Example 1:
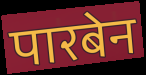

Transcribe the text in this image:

पारबेन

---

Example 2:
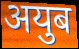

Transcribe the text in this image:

अयुब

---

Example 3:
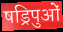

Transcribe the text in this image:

षड्रिपुओं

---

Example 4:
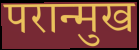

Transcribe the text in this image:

परान्मुख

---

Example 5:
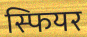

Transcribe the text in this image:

स्फियर